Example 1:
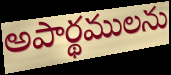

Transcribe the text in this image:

అపార్థములను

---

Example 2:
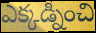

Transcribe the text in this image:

ఎక్కడ్నించి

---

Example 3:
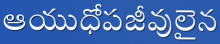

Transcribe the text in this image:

ఆయుధోపజీవులైన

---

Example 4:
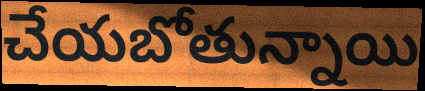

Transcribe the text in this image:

చేయబోతున్నాయి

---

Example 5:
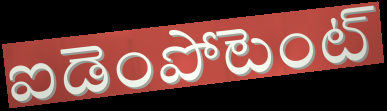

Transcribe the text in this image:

ఐడెంపోటెంట్